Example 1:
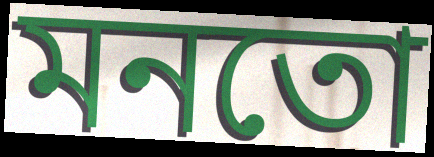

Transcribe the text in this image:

মনতো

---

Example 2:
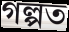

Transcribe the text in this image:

গল্পত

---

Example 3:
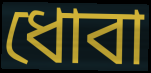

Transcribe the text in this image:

ধোবা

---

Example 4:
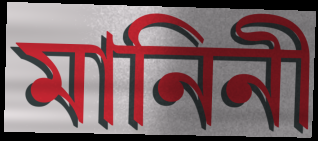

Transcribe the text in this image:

মানিনী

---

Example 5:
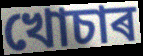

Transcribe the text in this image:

খোচাৰ